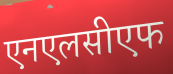
एनएलसीएफ